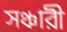
সঞ্চারী